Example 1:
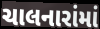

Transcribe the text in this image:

ચાલનારાંમાં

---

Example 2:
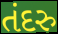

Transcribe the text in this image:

તંદરુ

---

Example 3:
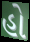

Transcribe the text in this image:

હો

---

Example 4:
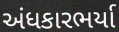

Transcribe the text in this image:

અંધકારભર્યા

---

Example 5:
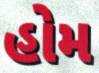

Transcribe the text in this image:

હોમ